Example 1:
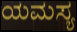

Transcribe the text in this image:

ಯಮಸ್ಯ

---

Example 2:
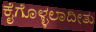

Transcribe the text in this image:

ಕೈಗೊಳ್ಳಲಾದೀತು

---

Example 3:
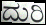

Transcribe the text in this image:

ದುರಿ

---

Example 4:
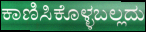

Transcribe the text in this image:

ಕಾಣಿಸಿಕೊಳ್ಳಬಲ್ಲದು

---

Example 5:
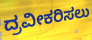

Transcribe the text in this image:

ದ್ರವೀಕರಿಸಲು